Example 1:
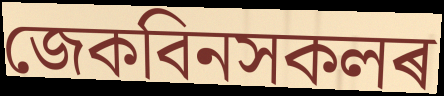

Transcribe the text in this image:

জেকবিনসকলৰ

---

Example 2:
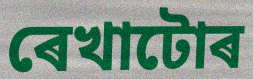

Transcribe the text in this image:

ৰেখাটোৰ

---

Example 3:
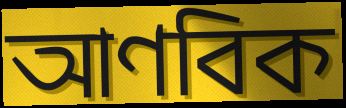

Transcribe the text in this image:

আণবিক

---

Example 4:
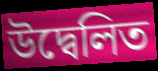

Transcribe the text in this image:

উদ্বেলিত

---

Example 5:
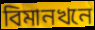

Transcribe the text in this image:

বিমানখনে